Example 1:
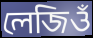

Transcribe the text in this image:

লেজিওঁ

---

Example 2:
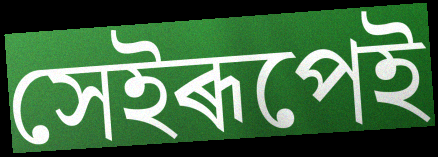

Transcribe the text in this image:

সেইৰূপেই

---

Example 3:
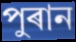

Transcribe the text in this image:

পুৰান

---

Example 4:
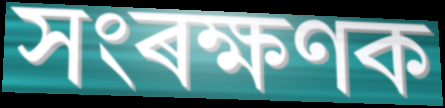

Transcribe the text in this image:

সংৰক্ষণক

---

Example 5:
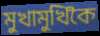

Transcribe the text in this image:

মুখামুখিকৈ